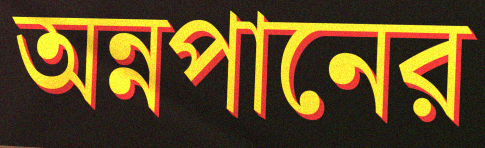
অন্নপানের